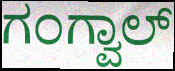
ಗಂಗ್ವಾಲ್